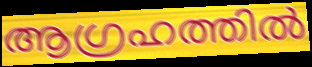
ആഗ്രഹത്തിൽ